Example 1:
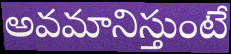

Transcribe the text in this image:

అవమానిస్తుంటే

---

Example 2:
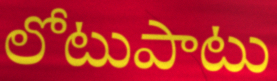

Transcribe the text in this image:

లోటుపాటు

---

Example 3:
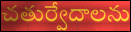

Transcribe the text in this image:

చతుర్వేదాలను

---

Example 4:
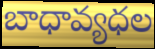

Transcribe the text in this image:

బాధావ్యధల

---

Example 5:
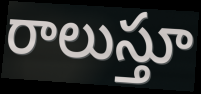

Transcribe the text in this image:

రాలుస్తూ